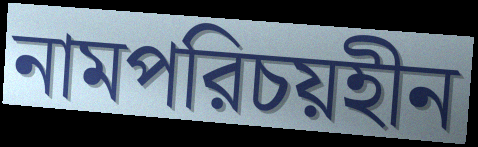
নামপরিচয়হীন